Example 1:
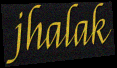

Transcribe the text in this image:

jhalak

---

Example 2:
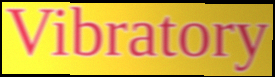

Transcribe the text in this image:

Vibratory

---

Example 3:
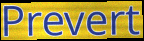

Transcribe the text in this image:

Prevert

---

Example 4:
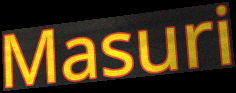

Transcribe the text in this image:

Masuri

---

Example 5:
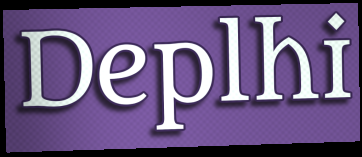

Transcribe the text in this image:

Deplhi